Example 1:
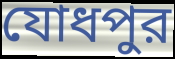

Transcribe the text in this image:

যোধপুর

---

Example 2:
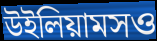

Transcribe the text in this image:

উইলিয়ামসও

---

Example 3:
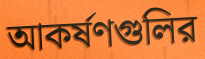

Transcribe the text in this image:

আকর্ষণগুলির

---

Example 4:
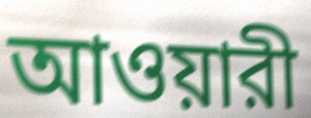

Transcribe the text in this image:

আওয়ারী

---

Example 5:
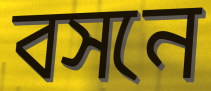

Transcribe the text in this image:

বসনে